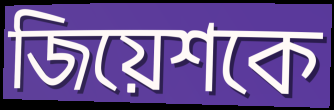
জিয়েশকে